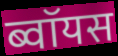
ब्वॉयस